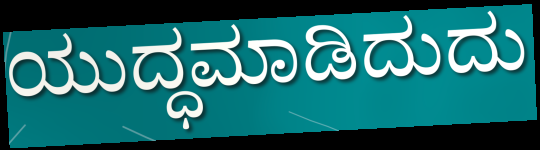
ಯುದ್ಧಮಾಡಿದುದು